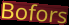
Bofors